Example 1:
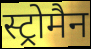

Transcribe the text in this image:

स्ट्रोमैन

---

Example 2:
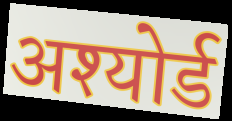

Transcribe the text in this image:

अश्योर्ड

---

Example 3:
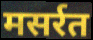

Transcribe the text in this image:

मसर्रत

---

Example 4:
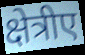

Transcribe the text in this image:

क्षेत्रीए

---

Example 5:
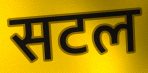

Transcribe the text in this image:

सटल